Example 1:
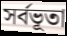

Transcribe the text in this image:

সর্বভূতা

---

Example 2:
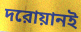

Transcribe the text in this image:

দরোয়ানই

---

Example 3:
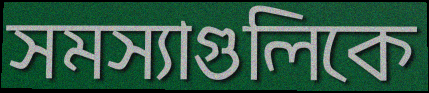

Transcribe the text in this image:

সমস্যাগুলিকে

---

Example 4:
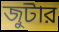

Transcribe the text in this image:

জুটার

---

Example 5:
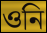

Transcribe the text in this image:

ওনি